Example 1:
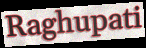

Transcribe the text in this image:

Raghupati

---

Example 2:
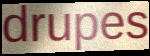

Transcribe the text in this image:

drupes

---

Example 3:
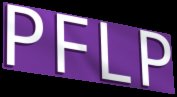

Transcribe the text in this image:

PFLP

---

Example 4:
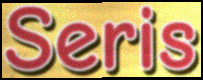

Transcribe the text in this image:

Seris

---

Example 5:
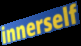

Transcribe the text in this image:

innerself